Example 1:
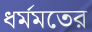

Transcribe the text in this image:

ধর্মমতের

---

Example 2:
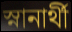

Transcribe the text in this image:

স্নানার্থী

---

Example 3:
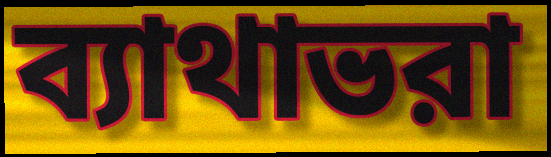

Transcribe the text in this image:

ব্যাথাভরা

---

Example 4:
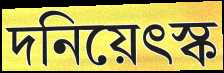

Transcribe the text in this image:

দনিয়েৎস্ক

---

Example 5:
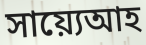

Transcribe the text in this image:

সায়্যেআহ